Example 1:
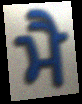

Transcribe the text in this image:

ਮੈ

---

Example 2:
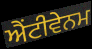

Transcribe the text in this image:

ਐਂਟੀਵੇਨਮ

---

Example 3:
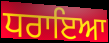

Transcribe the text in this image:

ਧਰਾਇਆ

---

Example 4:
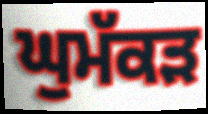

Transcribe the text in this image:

ਘੁਮੱਕੜ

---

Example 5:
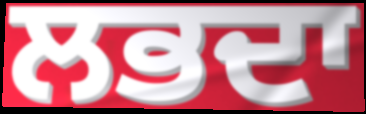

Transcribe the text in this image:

ਲਭਦਾ